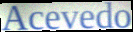
Acevedo